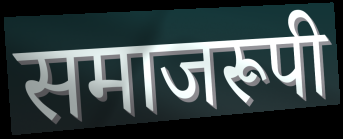
समाजरूपी